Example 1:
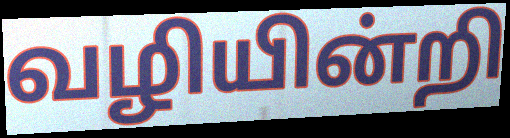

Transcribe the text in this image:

வழியின்றி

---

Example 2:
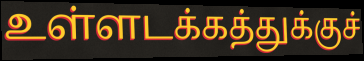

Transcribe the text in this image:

உள்ளடக்கத்துக்குச்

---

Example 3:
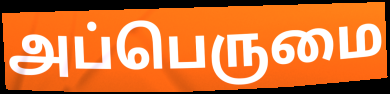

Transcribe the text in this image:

அப்பெருமை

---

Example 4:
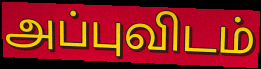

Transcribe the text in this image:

அப்புவிடம்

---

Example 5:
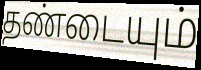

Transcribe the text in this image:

தண்டையும்